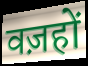
वज़हों